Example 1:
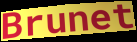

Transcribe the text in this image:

Brunet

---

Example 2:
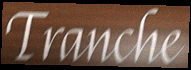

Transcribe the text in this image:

Tranche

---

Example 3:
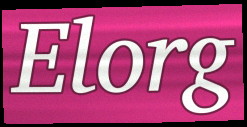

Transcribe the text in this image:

Elorg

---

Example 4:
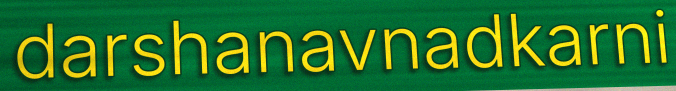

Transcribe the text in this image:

darshanavnadkarni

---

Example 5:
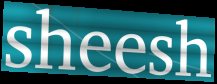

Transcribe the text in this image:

sheesh